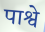
पाश्वे